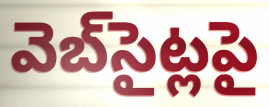
వెబ్‌సైట్లపై